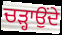
ਚੜ੍ਹਾਉਂਦੇ